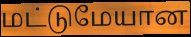
மட்டுமேயான